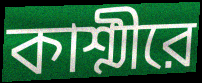
কাশ্মীরে